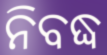
ନିବଦ୍ଧ